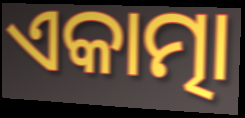
ଏକାତ୍ମା